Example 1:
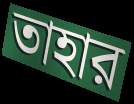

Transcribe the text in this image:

তাহার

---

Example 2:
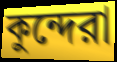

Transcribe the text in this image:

কুন্দেরা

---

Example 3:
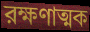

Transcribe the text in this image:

রক্ষণাত্মক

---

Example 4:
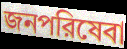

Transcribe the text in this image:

জনপরিষেবা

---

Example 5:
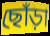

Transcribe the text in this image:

ছোঁড়া